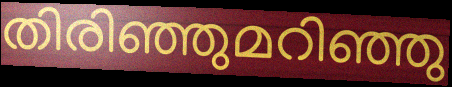
തിരിഞ്ഞുമറിഞ്ഞു